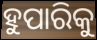
ହୁପାରିକୁ